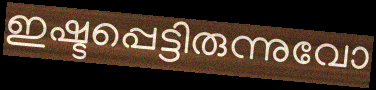
ഇഷ്ടപ്പെട്ടിരുന്നുവോ